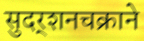
सुदर्शनचक्राने